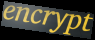
encrypt